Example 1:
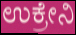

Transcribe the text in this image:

ಉಕ್ರೇನಿ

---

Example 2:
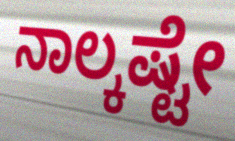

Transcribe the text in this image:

ನಾಲ್ಕಷ್ಟೇ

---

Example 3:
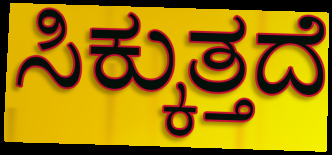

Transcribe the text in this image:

ಸಿಕ್ಕುತ್ತದೆ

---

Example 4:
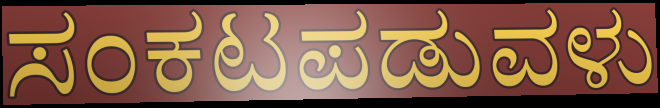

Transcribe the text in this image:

ಸಂಕಟಪಡುವಳು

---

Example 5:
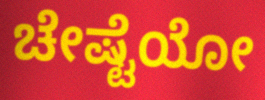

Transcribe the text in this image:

ಚೇಷ್ಟೆಯೋ